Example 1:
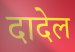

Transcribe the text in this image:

दादेल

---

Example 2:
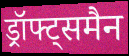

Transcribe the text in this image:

ड्रॉफ्ट्समैन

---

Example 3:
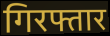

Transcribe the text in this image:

गिरफ्तार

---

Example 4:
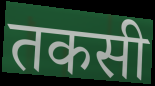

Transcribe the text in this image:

तकसी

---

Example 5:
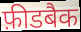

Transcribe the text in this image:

फ़ीडबैक